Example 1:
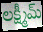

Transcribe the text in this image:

లక్ష్మీమ్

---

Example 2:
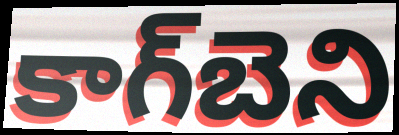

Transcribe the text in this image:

కాగ్‌బెని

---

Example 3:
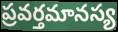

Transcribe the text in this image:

ప్రవర్తమానస్య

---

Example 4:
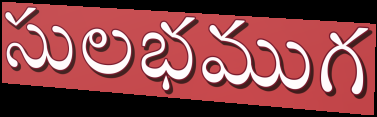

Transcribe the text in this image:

సులభముగ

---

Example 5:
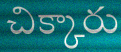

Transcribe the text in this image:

చిక్కారు